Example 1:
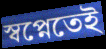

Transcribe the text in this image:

স্বপ্নেতেই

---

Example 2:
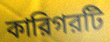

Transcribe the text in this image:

কারিগরটি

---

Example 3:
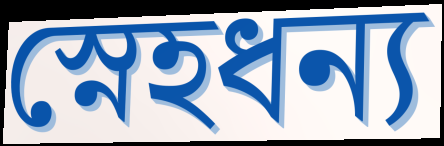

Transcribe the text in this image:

স্নেহধন্য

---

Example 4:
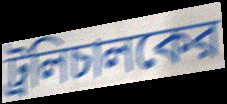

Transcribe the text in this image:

ট্রলিচালকের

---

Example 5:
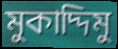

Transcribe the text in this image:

মুকাদ্দিমু